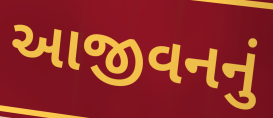
આજીવનનું